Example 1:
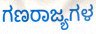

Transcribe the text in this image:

ಗಣರಾಜ್ಯಗಳ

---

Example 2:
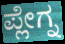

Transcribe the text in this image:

ಪ್ಲೇಗ್ನ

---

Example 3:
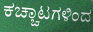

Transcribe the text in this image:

ಕಚ್ಚಾಟಗಳಿಂದ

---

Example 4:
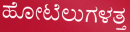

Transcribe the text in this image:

ಹೋಟೆಲುಗಳತ್ತ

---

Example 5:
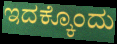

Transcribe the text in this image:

ಇದಕ್ಕೊಂದು